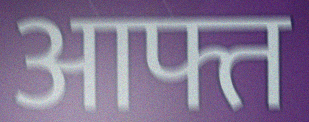
आफ्त